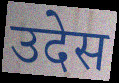
उदेस